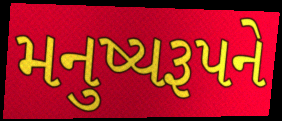
મનુષ્યરૂપને